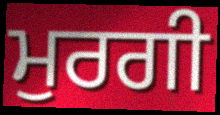
ਮੁਰਗੀ